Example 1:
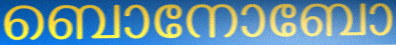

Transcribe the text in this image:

ബൊനോബോ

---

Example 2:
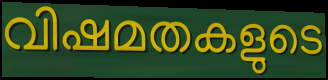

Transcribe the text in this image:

വിഷമതകളുടെ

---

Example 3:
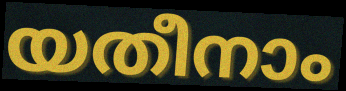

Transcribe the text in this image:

യതീനാം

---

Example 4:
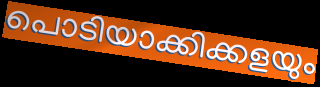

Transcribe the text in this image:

പൊടിയാക്കിക്കളയും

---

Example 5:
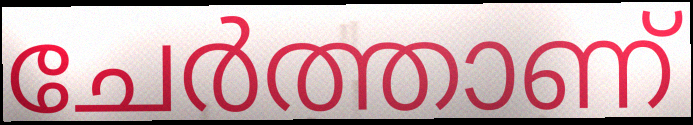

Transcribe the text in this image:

ചേർത്താണ്